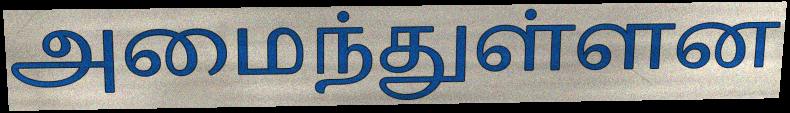
அமைந்துள்ளன